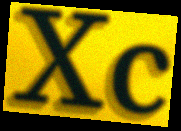
Xc